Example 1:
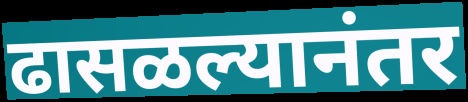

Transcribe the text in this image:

ढासळल्यानंतर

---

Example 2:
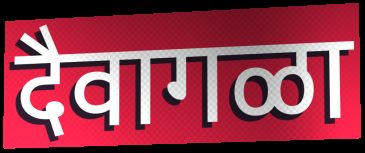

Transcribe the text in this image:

दैवागळा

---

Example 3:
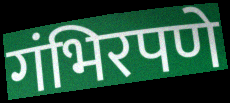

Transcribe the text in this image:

गंभिरपणे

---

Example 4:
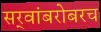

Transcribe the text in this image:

सर्वांबरोबरच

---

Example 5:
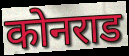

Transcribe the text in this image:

कोनराड